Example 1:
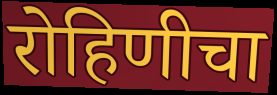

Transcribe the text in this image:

रोहिणीचा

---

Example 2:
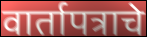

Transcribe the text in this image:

वार्तापत्राचे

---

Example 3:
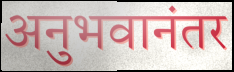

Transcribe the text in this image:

अनुभवानंतर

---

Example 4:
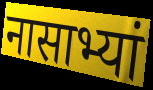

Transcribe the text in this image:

नासाभ्यां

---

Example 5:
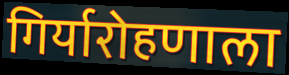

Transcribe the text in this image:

गिर्यारोहणाला